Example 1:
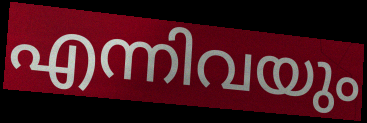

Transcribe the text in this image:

എന്നിവയും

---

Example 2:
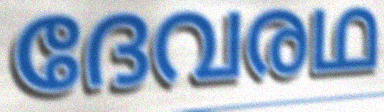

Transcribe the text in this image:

ദേവരഥ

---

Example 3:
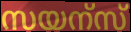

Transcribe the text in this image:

സയന്സ്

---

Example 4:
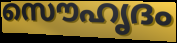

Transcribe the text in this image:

സൌഹൃദം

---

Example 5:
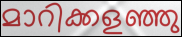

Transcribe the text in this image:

മാറിക്കളഞ്ഞു